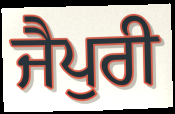
ਜੈਪੁਰੀ